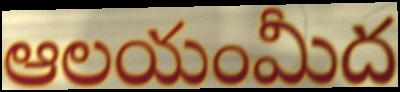
ఆలయంమీద